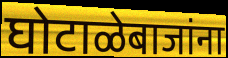
घोटाळेबाजांना